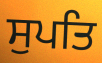
ਸੁਪਤਿ